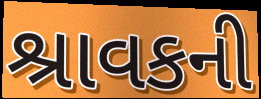
શ્રાવકની